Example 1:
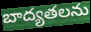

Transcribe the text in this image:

బాద్యతలను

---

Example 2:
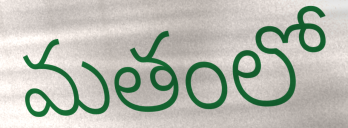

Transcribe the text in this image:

మతంలో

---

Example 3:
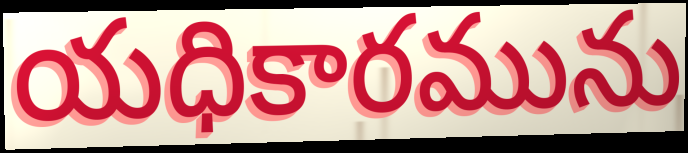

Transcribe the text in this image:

యధికారమును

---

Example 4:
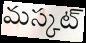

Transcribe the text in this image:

మస్కట్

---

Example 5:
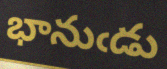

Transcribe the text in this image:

భానుఁడు